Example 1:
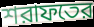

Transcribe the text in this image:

শরাফতের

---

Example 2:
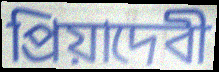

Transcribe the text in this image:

প্রিয়াদেবী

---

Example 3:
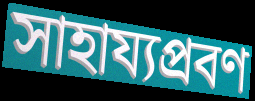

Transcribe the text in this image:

সাহায্যপ্রবণ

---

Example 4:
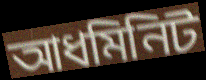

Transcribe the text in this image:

আধমিনিট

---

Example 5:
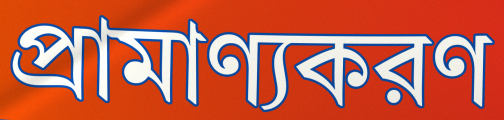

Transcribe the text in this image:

প্রামাণ্যকরণ